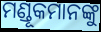
ମଣ୍ଡୂକମାନଙ୍କୁ